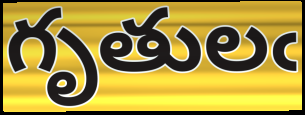
గృతులఁ